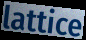
lattice